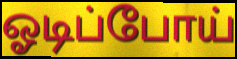
ஓடிப்போய்